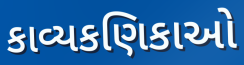
કાવ્યકણિકાઓ